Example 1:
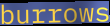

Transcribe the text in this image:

burrows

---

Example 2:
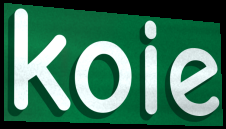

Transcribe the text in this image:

koie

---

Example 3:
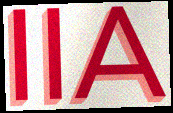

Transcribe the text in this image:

IIA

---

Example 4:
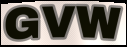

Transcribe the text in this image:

GVW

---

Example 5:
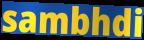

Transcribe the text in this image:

sambhdi